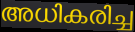
അധികരിച്ച